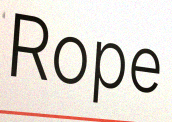
Rope